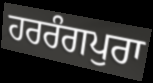
ਹਰਰੰਗਪੁਰਾ